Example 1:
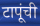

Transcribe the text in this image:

टापूंची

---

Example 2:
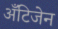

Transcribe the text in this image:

अँटिजेन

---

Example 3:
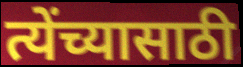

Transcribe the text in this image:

त्येंच्यासाठी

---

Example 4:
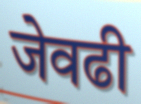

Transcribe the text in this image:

जेवढी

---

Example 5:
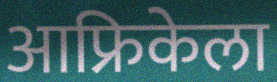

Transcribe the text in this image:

आफ्रिकेला